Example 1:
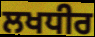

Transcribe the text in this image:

ਲਖਧੀਰ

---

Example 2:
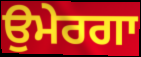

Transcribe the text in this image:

ਉਮੇਰਗਾ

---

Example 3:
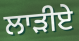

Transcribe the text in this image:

ਲਾੜੀਏ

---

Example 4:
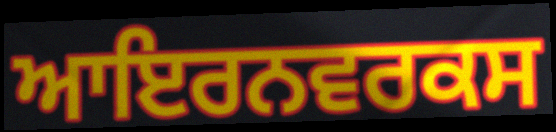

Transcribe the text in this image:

ਆਇਰਨਵਰਕਸ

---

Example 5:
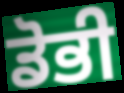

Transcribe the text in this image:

ਡੋਭੀ